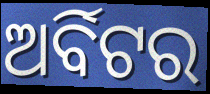
ଅର୍ବିଟର